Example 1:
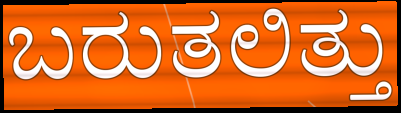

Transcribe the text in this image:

ಬರುತಲಿತ್ತು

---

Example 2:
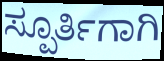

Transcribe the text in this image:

ಸ್ಪೂರ್ತಿಗಾಗಿ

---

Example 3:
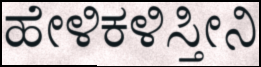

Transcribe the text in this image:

ಹೇಳಿಕಳಿಸ್ತೀನಿ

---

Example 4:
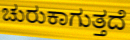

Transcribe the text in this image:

ಚುರುಕಾಗುತ್ತದೆ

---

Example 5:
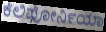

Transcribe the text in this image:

ಕೆಲಿಫೋರ್ನಿಯಾ